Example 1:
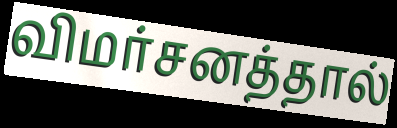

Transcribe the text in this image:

விமர்சனத்தால்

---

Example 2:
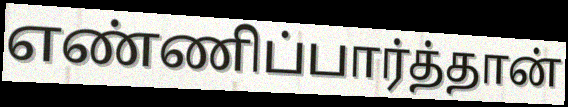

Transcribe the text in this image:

எண்ணிப்பார்த்தான்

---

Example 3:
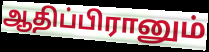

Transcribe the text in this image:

ஆதிப்பிரானும்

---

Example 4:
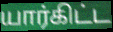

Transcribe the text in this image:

யார்கிட்ட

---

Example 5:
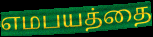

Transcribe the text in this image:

எமபயத்தை